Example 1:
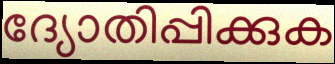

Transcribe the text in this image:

ദ്യോതിപ്പിക്കുക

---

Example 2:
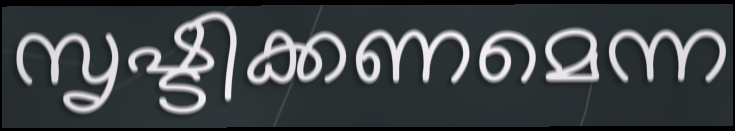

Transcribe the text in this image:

സൃഷ്ടിക്കണമെന്ന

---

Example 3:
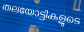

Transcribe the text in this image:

തലയോട്ടികളുടെ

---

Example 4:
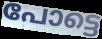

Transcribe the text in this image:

പോട്ടെ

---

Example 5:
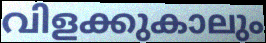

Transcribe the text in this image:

വിളക്കുകാലും